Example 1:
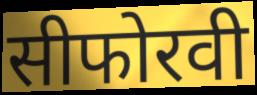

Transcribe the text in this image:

सीफोरवी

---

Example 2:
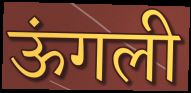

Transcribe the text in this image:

ऊंगली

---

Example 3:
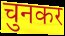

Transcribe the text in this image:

चुनकर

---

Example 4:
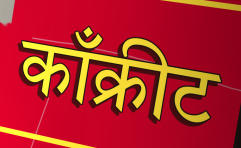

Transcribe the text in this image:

काँक्रीट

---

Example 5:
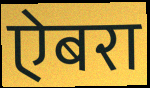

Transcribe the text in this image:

ऐबरा